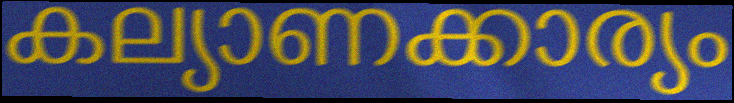
കല്യാണക്കാര്യം